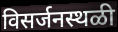
विसर्जनस्थळी